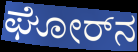
ಘೋರ್‌ನ